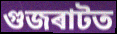
গুজৰাটত